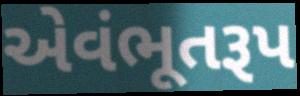
એવંભૂતરૂપ